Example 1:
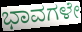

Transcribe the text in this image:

ಭಾವಗಳೇ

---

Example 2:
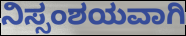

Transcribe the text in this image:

ನಿಸ್ಸಂಶಯವಾಗಿ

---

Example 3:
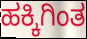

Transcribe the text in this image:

ಹಕ್ಕಿಗಿಂತ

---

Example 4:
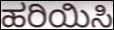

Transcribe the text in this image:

ಹರಿಯಿಸಿ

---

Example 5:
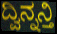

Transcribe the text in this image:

ದ್ವಿನ್ನನ್ತಿ